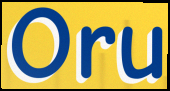
Oru